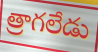
త్రాగలేడు